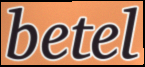
betel